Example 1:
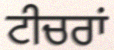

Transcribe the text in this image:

ਟੀਚਰਾਂ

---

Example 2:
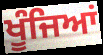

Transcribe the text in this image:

ਖੂੰਜਿਆਂ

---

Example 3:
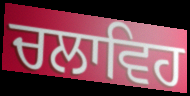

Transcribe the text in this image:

ਚਲਾਵਿਹ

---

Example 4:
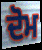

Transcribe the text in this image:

ਦੋਮ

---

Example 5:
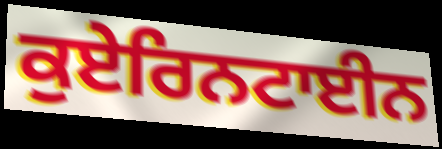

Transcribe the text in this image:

ਕੁਏਰਿਨਟਾਈਨ